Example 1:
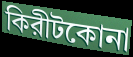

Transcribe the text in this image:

কিরীটকোনা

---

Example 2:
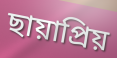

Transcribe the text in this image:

ছায়াপ্রিয়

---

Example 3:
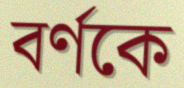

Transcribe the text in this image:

বর্ণকে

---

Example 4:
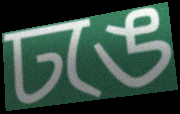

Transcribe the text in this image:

ঢঙে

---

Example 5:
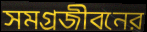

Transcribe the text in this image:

সমগ্রজীবনের